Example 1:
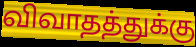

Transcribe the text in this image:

விவாதத்துக்கு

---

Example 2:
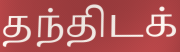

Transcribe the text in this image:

தந்திடக்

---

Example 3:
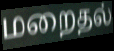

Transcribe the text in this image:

மறைதல்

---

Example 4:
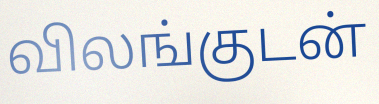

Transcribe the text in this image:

விலங்குடன்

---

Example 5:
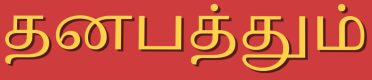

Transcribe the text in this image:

தனபத்தும்